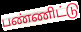
பண்ணிட்டு